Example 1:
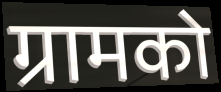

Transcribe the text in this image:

ग्रामको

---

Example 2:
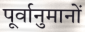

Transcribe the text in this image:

पूर्वानुमानों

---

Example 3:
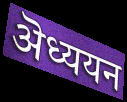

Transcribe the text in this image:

ऄध्ययन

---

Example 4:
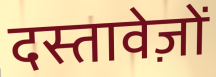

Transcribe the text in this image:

दस्तावेज़ों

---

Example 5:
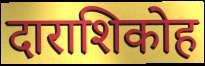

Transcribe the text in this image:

दाराशिकोह